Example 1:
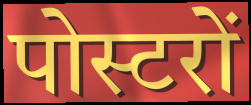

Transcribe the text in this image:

पोस्‍टरों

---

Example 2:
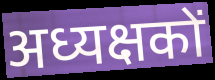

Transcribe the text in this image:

अध्यक्षकों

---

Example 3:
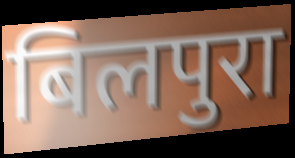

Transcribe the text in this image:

बिलपुरा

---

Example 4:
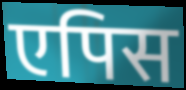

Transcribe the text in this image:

एपिस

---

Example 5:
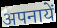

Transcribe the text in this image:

अपनायें